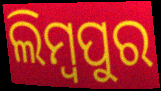
ଲିମ୍ବପୁର